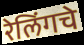
रेलिंगचे